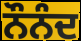
ਨੌਨੰਦ